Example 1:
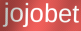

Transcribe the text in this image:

jojobet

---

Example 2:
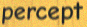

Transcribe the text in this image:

percept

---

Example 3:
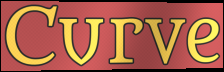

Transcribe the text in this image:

Curve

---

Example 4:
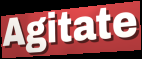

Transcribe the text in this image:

Agitate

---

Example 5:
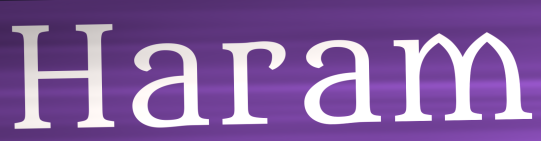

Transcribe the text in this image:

Haram